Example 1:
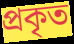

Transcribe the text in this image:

প্ৰকৃত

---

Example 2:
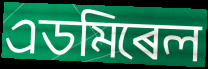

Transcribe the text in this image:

এডমিৰেল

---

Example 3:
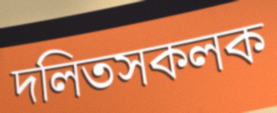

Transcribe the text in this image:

দলিতসকলক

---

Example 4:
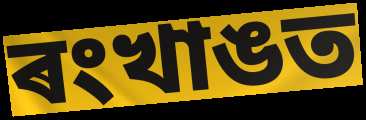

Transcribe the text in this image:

ৰংখাঙত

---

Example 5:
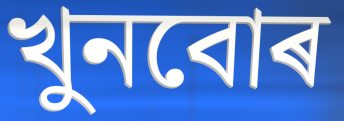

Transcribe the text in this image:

খুনবোৰ